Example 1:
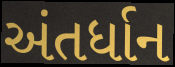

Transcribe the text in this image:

અંતર્ધાન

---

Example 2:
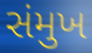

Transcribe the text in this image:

સંમુખ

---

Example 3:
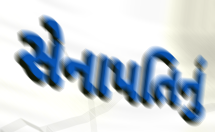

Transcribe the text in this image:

સેનાપતિનું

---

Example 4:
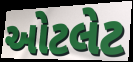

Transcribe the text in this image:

ઓટલેટ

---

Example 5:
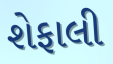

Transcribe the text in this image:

શેફાલી